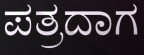
ಪತ್ರದಾಗ